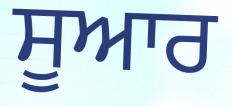
ਸੂਆਰ